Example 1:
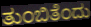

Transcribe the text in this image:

ತುಂಬಿತೆಂದು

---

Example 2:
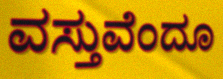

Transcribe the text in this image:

ವಸ್ತುವೆಂದೂ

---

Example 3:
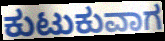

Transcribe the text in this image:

ಕುಟುಕುವಾಗ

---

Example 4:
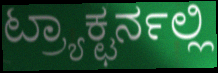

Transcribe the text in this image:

ಟ್ರ್ಯಾಕ್ಟರ್ನಲ್ಲಿ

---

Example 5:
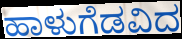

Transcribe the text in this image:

ಹಾಳುಗೆಡವಿದ